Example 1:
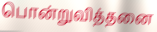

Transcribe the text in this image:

பொன்றுவித்தனை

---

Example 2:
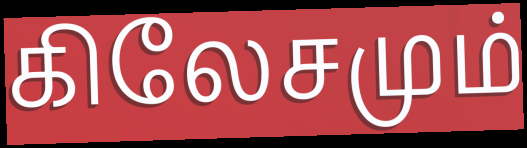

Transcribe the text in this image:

கிலேசமும்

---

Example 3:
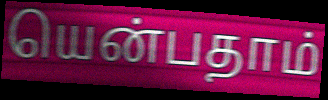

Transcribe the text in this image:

யென்பதாம்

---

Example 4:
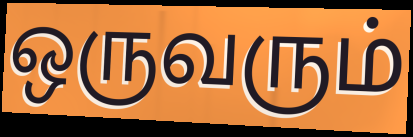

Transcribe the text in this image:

ஒருவரும்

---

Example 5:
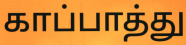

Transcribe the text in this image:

காப்பாத்து